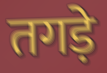
तगड़े